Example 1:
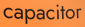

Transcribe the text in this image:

capacitor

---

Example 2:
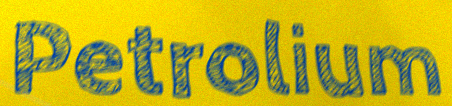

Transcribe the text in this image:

Petrolium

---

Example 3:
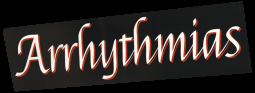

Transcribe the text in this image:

Arrhythmias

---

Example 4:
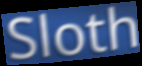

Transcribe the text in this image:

Sloth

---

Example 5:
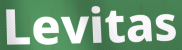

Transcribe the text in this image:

Levitas